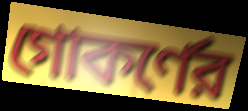
গোকর্ণের